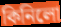
কিনিলো